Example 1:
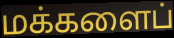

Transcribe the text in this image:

மக்களைப்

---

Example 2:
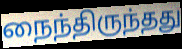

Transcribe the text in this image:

நைந்திருந்தது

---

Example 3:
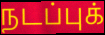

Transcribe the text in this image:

நடப்புக்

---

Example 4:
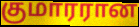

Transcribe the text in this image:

குமாரரான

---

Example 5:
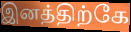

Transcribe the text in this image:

இனத்திற்கே